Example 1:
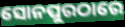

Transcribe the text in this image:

ସୋନପୁରଠାରେ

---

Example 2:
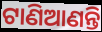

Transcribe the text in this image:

ଟାଣିଆଣନ୍ତି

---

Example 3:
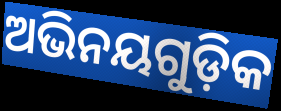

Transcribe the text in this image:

ଅଭିନୟଗୁଡ଼ିକ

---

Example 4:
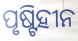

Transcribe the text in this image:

ପୃଷ୍ଟିହୀନ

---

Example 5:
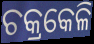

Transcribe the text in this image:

ଚକ୍ରକେଳି